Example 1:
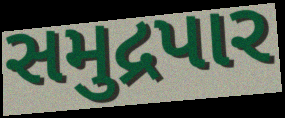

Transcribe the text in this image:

સમુદ્રપાર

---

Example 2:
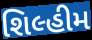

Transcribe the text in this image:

શિલ્હીમ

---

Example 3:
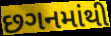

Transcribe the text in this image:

છગનમાંથી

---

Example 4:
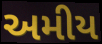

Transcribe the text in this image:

અમીય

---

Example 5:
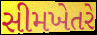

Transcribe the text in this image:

સીમખેતરે